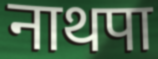
नाथपा